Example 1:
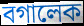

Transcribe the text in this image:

বগালেক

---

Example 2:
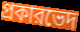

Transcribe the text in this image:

প্রকারভেদ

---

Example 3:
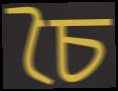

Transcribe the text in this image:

চৈ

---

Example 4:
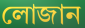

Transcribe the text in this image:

লোজান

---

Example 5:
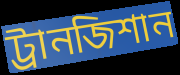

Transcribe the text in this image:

ট্রানজিশান